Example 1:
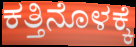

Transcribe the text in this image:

ಕತ್ತಿನೊಳಕ್ಕೆ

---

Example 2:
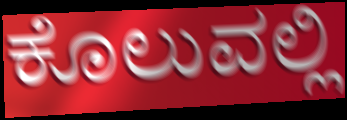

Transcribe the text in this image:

ಕೊಲುವಲ್ಲಿ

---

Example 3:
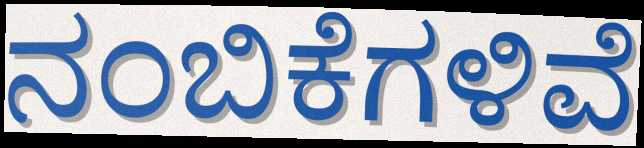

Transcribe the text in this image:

ನಂಬಿಕೆಗಳಿವೆ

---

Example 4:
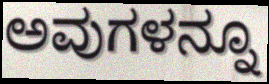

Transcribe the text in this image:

ಅವುಗಳನ್ನೂ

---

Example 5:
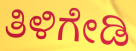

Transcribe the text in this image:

ತಿಳಿಗೇಡಿ